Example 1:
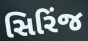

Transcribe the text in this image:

સિરિંજ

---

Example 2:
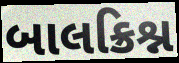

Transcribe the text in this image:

બાલક્રિશ્ન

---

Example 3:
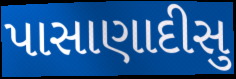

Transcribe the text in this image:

પાસાણાદીસુ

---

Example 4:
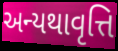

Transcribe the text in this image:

અન્યથાવૃત્તિ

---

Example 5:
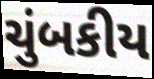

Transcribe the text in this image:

ચુંબકીય